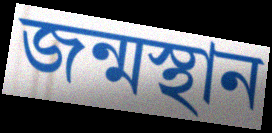
জন্মস্থান